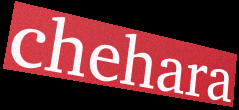
chehara